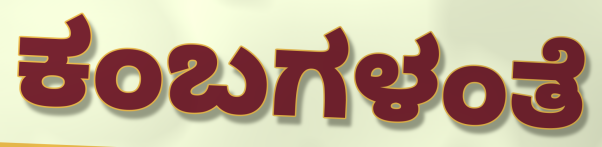
ಕಂಬಗಳಂತೆ